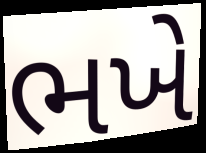
ભખે